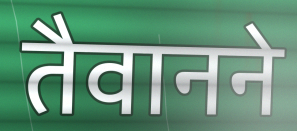
तैवानने